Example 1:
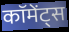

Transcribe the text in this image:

कॉमेंट्स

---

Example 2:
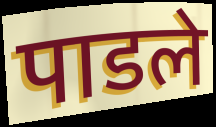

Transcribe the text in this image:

पाडले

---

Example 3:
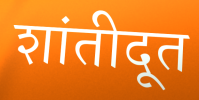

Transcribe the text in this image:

शांतीदूत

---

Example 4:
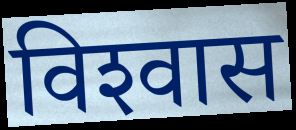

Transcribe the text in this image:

विश्‍वास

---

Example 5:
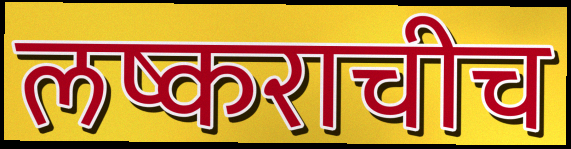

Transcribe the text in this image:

लष्कराचीच